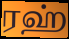
ரஹ்